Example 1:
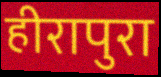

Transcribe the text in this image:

हीरापुरा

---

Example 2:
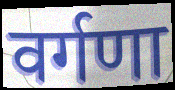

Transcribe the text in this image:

वर्गणा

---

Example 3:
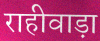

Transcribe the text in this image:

राहीवाड़ा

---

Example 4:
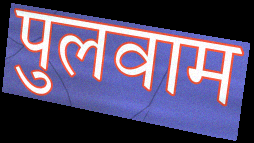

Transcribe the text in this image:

पुलवाम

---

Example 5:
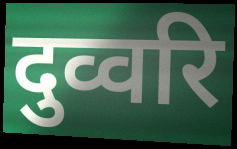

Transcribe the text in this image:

दुव्वरि